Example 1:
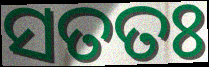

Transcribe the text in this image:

ସତତଃ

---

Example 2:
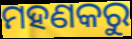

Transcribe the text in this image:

ମହଣକରୁ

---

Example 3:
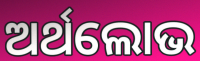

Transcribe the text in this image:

ଅର୍ଥଲୋଭ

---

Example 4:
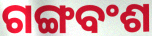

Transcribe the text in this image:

ଗଙ୍ଗବଂଶ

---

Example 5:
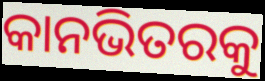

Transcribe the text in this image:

କାନଭିତରକୁ